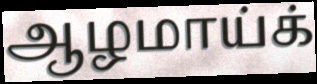
ஆழமாய்க்